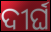
ଦୀର୍ଘ